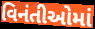
વિનંતીઓમાં